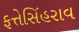
ફત્તેસિંહરાવ